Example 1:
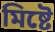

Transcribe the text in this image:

মিষ্টে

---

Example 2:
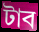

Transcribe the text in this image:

টাব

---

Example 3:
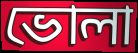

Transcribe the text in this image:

ভোলা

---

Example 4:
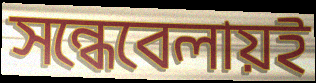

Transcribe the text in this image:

সন্ধেবেলায়ই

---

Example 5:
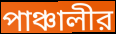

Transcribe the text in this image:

পাঞ্চালীর